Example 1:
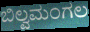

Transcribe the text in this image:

ಬಿಲ್ವಮಂಗಲ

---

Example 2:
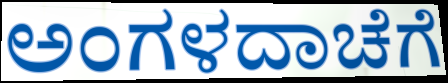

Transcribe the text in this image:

ಅಂಗಳದಾಚೆಗೆ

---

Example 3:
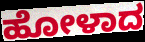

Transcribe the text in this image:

ಹೋಳಾದ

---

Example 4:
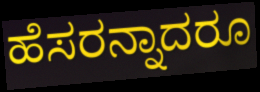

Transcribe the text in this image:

ಹೆಸರನ್ನಾದರೂ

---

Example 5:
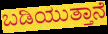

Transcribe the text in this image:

ಬಡಿಯುತ್ತಾನೆ